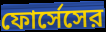
ফোর্সেসের